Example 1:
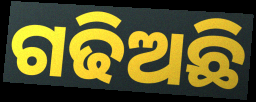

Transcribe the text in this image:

ଗଢିଅଛି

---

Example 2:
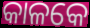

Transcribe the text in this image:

କାଳକେ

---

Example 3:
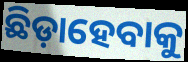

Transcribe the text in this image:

ଛିଡ଼ାହେବାକୁ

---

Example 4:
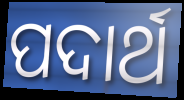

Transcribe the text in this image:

ପଦାର୍ଥ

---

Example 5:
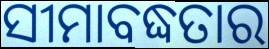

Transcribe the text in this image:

ସୀମାବଦ୍ଧତାର